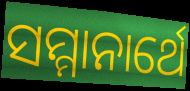
ସମ୍ମାନାର୍ଥେ